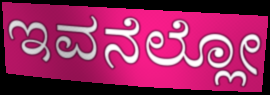
ಇವನೆಲ್ಲೋ